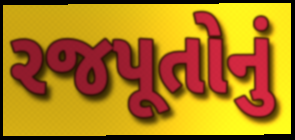
રજપૂતોનું